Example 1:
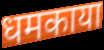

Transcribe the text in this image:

धमकाया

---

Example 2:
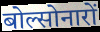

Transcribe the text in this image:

बोल्सोनारों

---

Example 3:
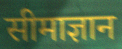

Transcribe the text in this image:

सीमाज्ञान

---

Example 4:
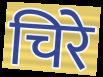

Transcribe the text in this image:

चिरे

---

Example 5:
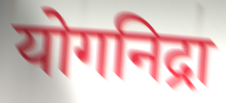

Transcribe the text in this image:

योगनिद्रा